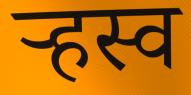
ऱ्हस्व